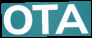
OTA